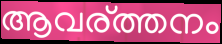
ആവര്ത്തനം